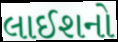
લાઈશનો